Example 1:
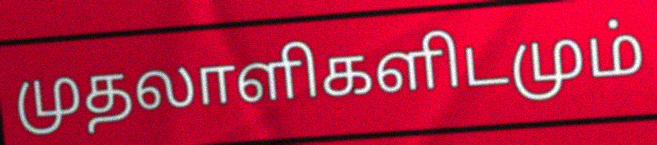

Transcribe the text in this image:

முதலாளிகளிடமும்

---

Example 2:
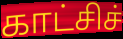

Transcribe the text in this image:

காட்சிச்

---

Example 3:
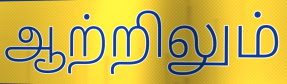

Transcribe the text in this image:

ஆற்றிலும்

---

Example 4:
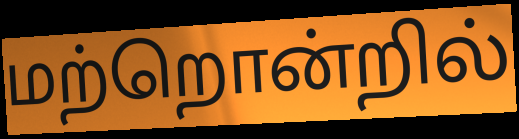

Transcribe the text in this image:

மற்றொன்றில்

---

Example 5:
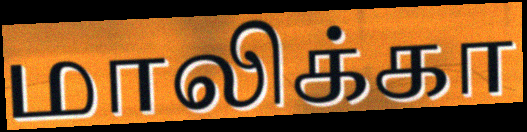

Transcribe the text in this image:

மாலிக்கா